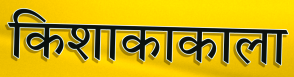
किशाकाकाला